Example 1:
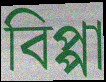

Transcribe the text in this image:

বিপ্পা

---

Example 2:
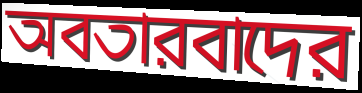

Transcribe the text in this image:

অবতারবাদের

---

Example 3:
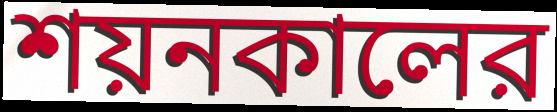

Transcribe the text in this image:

শয়নকালের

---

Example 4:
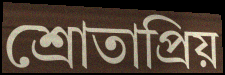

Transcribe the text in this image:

শ্রোতাপ্রিয়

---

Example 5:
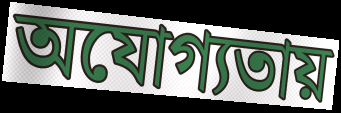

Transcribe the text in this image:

অযোগ্যতায়